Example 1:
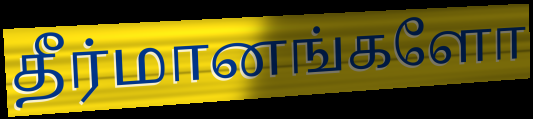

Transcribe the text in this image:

தீர்மானங்களோ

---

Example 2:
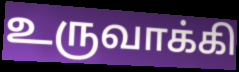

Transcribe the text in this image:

உருவாக்கி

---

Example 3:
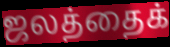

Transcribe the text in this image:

ஜலத்தைக்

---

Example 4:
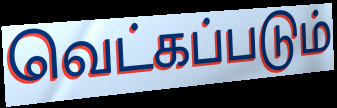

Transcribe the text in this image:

வெட்கப்படும்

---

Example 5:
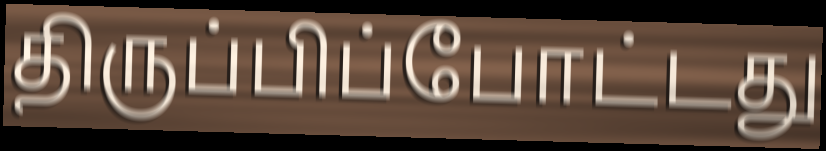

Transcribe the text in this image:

திருப்பிப்போட்டது